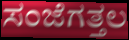
ಸಂಜೆಗತ್ತಲ